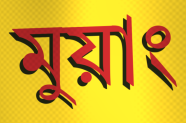
মুয়াং